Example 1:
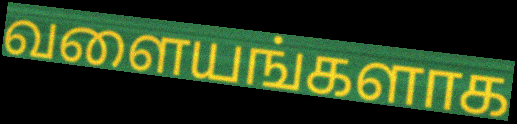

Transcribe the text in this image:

வளையங்களாக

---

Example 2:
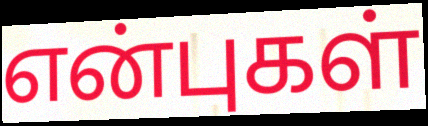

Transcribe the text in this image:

என்புகள்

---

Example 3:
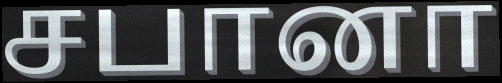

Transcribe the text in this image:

சபானா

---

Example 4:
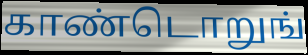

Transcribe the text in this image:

காண்டொறுங்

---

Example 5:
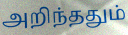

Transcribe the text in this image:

அறிந்ததும்